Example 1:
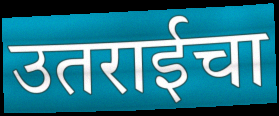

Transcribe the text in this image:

उतराईचा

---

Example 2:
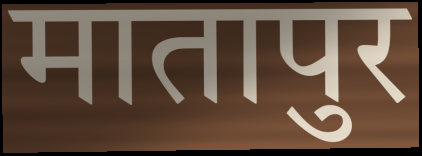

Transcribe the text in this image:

मातापुर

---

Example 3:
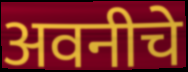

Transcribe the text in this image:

अवनीचे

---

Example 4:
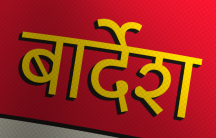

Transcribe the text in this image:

बार्देश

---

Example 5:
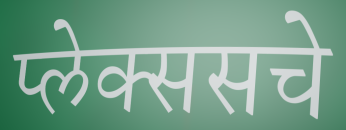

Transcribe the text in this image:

प्लेक्ससचे